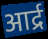
आर्द्र